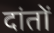
दांतों